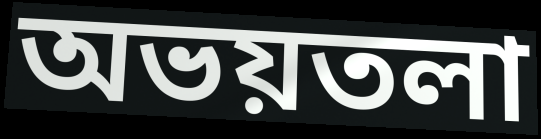
অভয়তলা